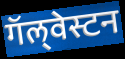
गॅल्वेस्टन